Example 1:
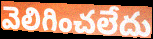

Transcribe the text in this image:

వెలిగించలేదు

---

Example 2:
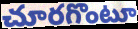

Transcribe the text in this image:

చూరగొంటూ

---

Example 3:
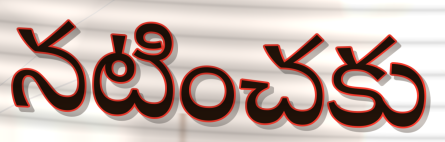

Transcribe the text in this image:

నటించకు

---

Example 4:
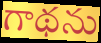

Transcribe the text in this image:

గాథను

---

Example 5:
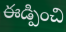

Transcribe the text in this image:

ఈడ్పించి